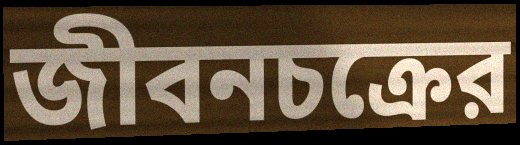
জীবনচক্রের